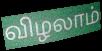
விழலாம்